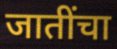
जातींचा